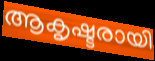
ആകൃഷ്ടരായി